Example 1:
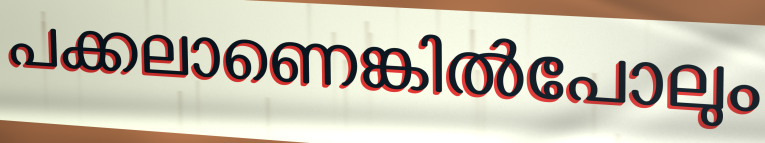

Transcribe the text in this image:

പക്കലാണെങ്കിൽപോലും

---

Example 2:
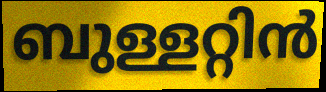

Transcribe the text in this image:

ബുള്ളറ്റിൻ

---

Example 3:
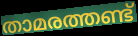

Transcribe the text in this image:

താമരത്തണ്ട്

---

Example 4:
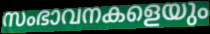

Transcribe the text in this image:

സംഭാവനകളെയും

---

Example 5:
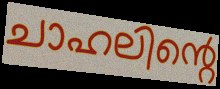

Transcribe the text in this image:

ചാഹലിന്റെ